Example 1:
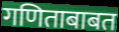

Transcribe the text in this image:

गणिताबाबत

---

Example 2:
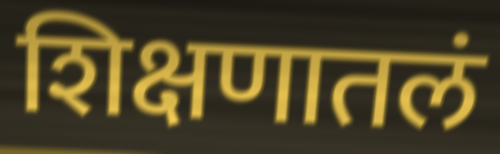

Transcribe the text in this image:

शिक्षणातलं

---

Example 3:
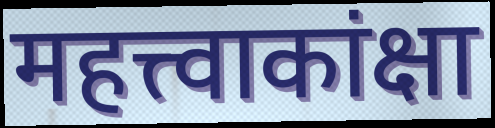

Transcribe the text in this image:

महत्त्वाकांक्षा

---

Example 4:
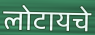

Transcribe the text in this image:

लोटायचे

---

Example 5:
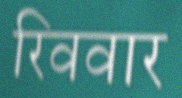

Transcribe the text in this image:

रिववार